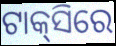
ଟାକ୍‌ସିରେ